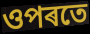
ওপৰতে